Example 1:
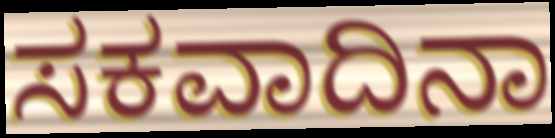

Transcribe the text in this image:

ಸಕವಾದಿನಾ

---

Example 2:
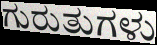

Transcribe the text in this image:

ಗುರುತುಗಳು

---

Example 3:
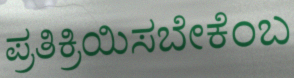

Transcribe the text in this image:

ಪ್ರತಿಕ್ರಿಯಿಸಬೇಕೆಂಬ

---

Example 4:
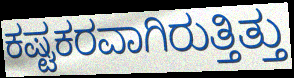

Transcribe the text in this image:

ಕಷ್ಟಕರವಾಗಿರುತ್ತಿತ್ತು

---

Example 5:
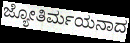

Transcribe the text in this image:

ಜ್ಯೋತಿರ್ಮಯನಾದ